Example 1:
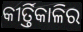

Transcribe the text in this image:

କୀର୍ତ୍ତିକାଳିର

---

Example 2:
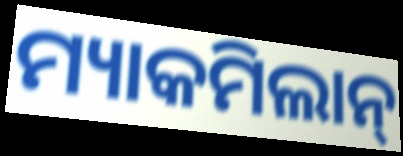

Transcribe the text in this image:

ମ୍ୟାକମିଲାନ୍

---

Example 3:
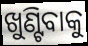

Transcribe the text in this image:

ଖୁଣ୍ଟିବାକୁ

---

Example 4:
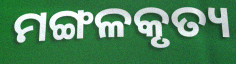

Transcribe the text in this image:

ମଙ୍ଗଳକୃତ୍ୟ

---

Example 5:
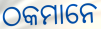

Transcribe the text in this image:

ଠକମାନେ